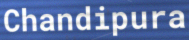
Chandipura